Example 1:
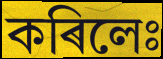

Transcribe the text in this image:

কৰিলেঃ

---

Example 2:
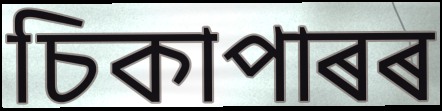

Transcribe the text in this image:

চিকাপাৰৰ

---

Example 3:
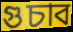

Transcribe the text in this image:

গুচাব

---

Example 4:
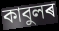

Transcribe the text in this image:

কাবুলৰ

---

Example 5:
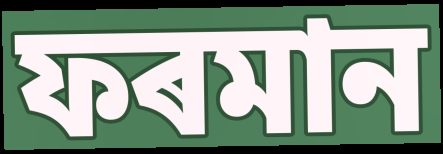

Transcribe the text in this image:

ফৰমান